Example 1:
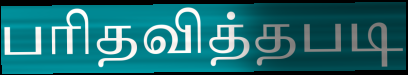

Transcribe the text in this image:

பரிதவித்தபடி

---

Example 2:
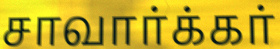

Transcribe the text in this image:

சாவார்க்கர்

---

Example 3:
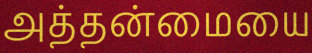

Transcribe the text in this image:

அத்தன்மையை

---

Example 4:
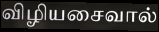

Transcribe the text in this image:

விழியசைவால்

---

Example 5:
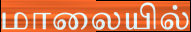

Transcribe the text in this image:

மாலையில்